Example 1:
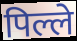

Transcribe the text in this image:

पिल्ले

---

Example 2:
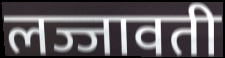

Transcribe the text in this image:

लज्जावती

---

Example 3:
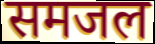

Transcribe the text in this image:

समजल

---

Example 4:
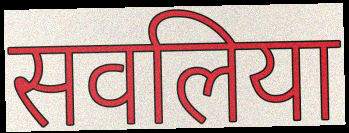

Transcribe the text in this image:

सवलिया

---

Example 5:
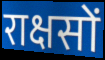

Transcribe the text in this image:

राक्षसों